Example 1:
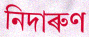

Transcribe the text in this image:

নিদাৰুণ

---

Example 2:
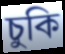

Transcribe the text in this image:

চুকি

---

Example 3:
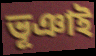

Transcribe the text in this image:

ভূঞাই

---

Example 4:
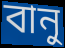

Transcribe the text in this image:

বানু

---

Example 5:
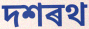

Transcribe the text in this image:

দশৰথ